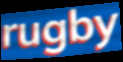
rugby